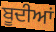
ਬੂਦੀਆਂ